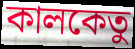
কালকেতু